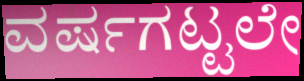
ವರ್ಷಗಟ್ಟಲೇ